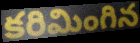
కరిమింగిన